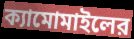
ক্যামোমাইলের